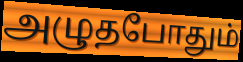
அழுதபோதும்